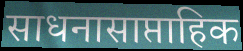
साधनासाप्ताहिक